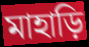
মাহাড়ি